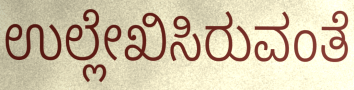
ಉಲ್ಲೇಖಿಸಿರುವಂತೆ